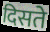
दिसते